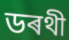
ডৰথী